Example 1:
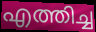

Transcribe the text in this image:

എത്തിച്ച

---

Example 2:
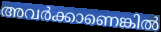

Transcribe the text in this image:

അവർക്കാണെങ്കിൽ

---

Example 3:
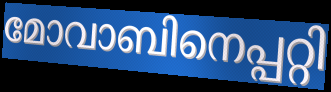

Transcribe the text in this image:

മോവാബിനെപ്പറ്റി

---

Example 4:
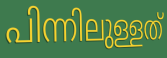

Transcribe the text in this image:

പിന്നിലുള്ളത്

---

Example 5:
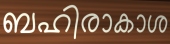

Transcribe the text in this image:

ബഹിരാകാശ